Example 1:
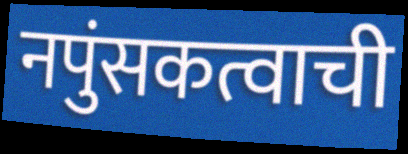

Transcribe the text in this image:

नपुंसकत्वाची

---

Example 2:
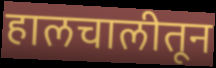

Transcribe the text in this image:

हालचालीतून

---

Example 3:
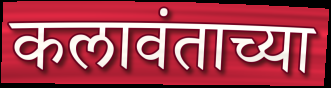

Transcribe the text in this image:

कलावंताच्या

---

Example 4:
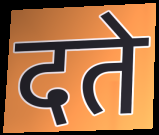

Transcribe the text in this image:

दते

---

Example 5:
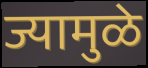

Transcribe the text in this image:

ज्यामुळे